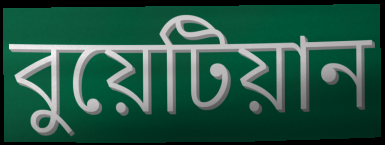
বুয়েটিয়ান